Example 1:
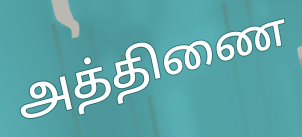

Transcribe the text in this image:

அத்திணை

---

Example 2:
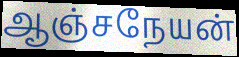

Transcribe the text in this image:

ஆஞ்சநேயன்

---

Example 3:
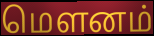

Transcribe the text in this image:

மௌனம்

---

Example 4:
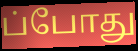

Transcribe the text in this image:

ப்போது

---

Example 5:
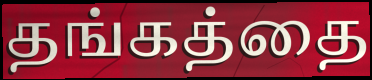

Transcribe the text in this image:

தங்கத்தை